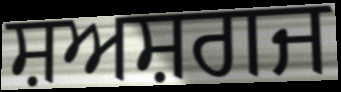
ਸ਼ਅਸ਼ਗਜ